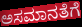
ಅಸಮಾನತೆಗೆ